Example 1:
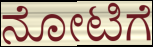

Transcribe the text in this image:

ನೋಟಿಗೆ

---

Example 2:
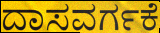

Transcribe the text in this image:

ದಾಸವರ್ಗಕೆ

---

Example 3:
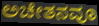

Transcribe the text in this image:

ಅಚೇತನವೂ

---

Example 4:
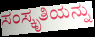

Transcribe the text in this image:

ಸಂಸ್ಕೃತಿಯನ್ನು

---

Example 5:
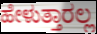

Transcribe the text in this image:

ಹೇಳುತ್ತಾರಲ್ಲ